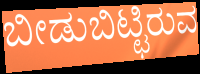
ಬೀಡುಬಿಟ್ಟಿರುವ